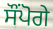
ਸੌਂਪੋਗੇ